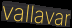
vallavar